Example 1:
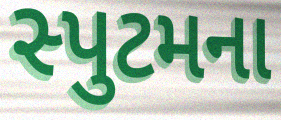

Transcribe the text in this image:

સ્પુટમના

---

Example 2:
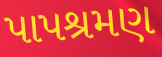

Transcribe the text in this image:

પાપશ્રમણ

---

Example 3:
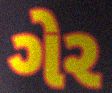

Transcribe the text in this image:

ગેર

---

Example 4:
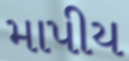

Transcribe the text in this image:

માપીય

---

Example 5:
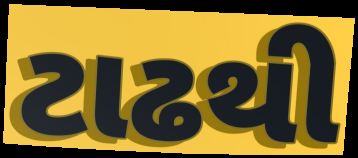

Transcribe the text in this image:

ટાઢથી